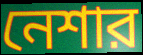
নেশার